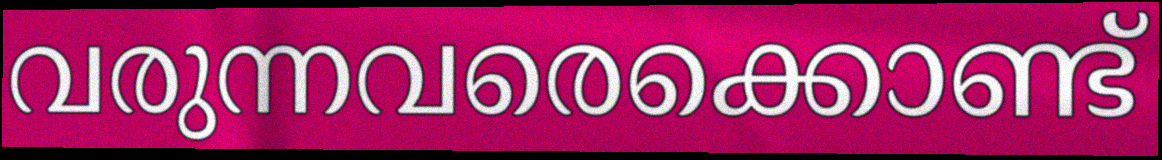
വരുന്നവരെക്കൊണ്ട്